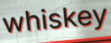
whiskey